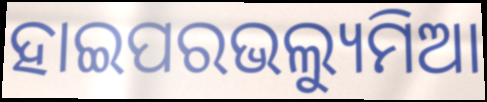
ହାଇପରଭଲ୍ୟୁମିଆ